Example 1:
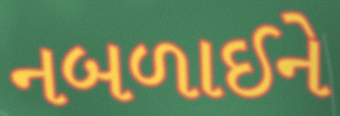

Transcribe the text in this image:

નબળાઈને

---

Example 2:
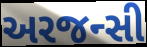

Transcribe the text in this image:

અરજન્સી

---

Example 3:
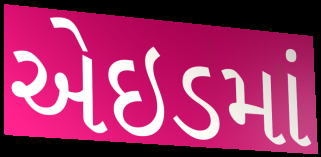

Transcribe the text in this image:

એઇડમાં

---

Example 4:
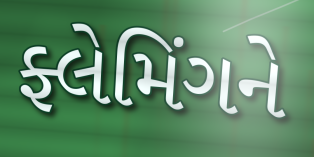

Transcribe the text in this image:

ફ્લેમિંગને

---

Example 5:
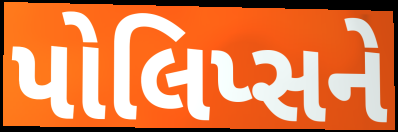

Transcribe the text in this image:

પોલિપ્સને